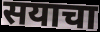
सयाचा